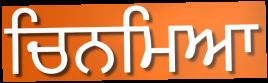
ਚਿਨਮਿਆ